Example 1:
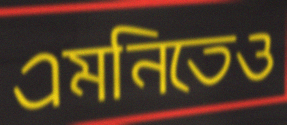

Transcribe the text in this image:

এমনিতেও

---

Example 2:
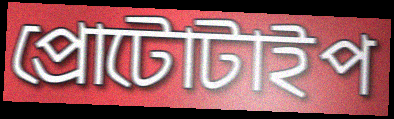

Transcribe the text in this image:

প্রোটোটাইপ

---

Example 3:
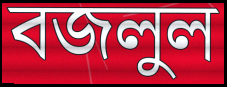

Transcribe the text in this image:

বজলুল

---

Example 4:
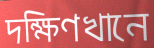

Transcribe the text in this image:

দক্ষিণখানে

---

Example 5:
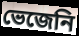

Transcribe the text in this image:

ভেজেনি